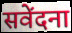
सवेंदना